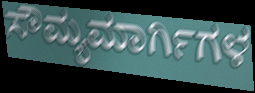
ಸೌಮ್ಯಮಾರ್ಗಿಗಳ